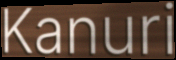
Kanuri